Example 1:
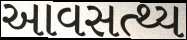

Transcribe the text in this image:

આવસત્થ્ય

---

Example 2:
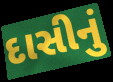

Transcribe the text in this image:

દાસીનું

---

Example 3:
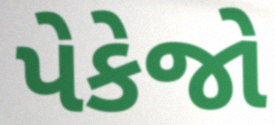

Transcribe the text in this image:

પેકેજો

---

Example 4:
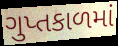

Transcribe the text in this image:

ગુપ્તકાળમાં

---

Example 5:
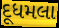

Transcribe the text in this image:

દૂધમલા